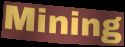
Mining